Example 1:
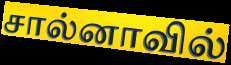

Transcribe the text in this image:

சால்னாவில்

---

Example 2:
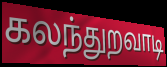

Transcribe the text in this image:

கலந்துறவாடி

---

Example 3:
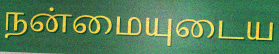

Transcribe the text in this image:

நன்மையுடைய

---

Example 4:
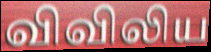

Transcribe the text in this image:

விவிலிய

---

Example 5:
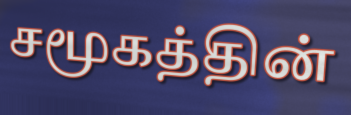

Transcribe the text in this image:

சமூகத்தின்